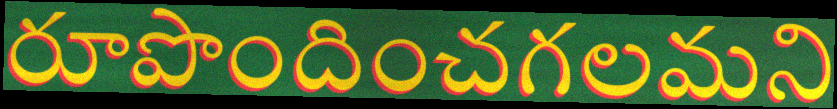
రూపొందించగలమని